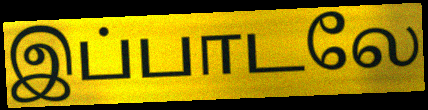
இப்பாடலே